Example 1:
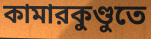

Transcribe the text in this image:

কামারকুণ্ডুতে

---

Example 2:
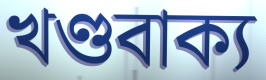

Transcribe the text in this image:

খণ্ডবাক্য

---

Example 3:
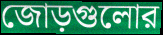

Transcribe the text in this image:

জোড়গুলোর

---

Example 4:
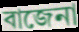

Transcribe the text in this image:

বাজেনা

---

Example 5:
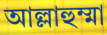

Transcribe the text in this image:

আল্লাহুম্মা